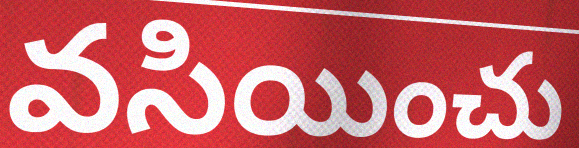
వసియించు